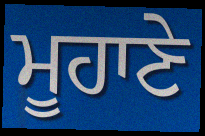
ਮੂਹਾਣੇ